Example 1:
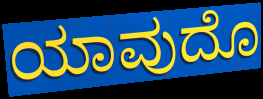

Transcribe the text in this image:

ಯಾವುದೊ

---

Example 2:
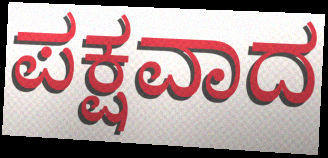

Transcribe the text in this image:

ಪಕ್ಷವಾದ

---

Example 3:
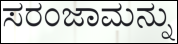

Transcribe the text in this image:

ಸರಂಜಾಮನ್ನು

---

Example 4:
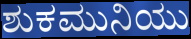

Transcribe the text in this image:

ಶುಕಮುನಿಯು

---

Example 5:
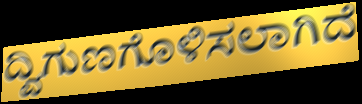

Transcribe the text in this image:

ದ್ವಿಗುಣಗೊಳಿಸಲಾಗಿದೆ